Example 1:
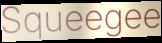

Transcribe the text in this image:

Squeegee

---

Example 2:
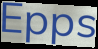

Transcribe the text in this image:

Epps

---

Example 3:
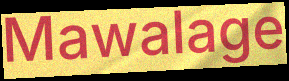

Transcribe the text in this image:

Mawalage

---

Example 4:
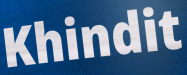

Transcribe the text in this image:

Khindit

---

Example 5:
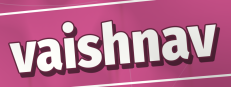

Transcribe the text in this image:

vaishnav